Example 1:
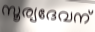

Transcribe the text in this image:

സൂര്യദേവന്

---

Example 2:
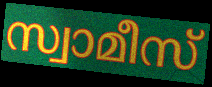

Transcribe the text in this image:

സ്വാമീസ്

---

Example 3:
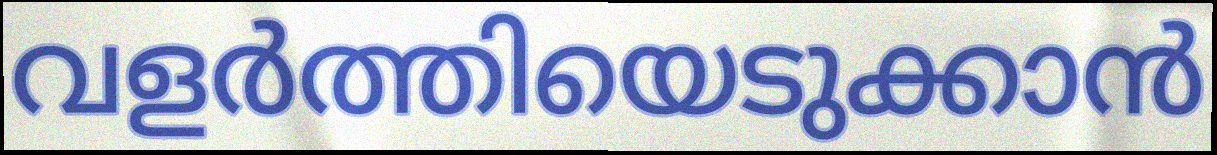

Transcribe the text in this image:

വളർത്തിയെടുക്കാൻ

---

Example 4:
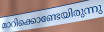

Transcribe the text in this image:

മാറിക്കൊണ്ടേയിരുന്നു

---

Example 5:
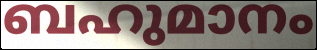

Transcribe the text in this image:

ബഹുമാനം